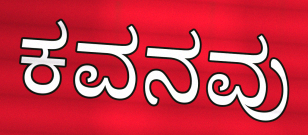
ಕವನವು